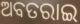
ଅବତରାଇ